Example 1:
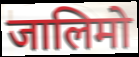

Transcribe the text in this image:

जालिमो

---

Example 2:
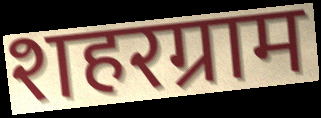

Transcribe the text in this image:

शहरग्राम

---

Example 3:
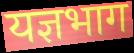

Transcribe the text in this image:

यज्ञभाग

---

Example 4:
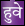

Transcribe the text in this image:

हुवे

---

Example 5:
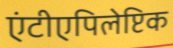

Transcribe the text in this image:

एंटीएपिलेप्टिक